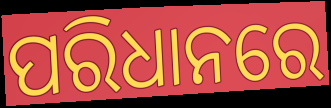
ପରିଧାନରେ